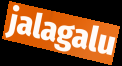
jalagalu